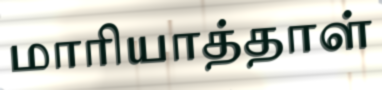
மாரியாத்தாள்